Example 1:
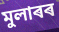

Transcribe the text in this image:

মুলাৰৰ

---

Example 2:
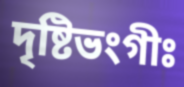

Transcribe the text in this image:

দৃষ্টিভংগীঃ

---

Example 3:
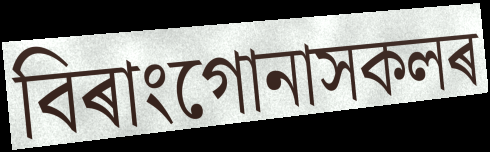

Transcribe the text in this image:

বিৰাংগোনাসকলৰ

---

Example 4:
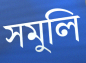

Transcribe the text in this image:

সমুলি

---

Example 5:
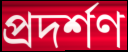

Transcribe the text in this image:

প্ৰদৰ্শণ